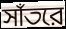
সাঁতরে